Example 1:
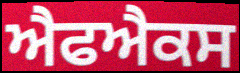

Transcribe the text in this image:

ਐਫਐਕਸ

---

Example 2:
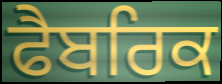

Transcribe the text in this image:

ਫੈਬਰਿਕ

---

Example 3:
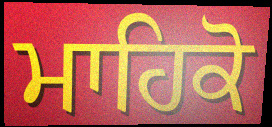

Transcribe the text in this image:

ਮਾਹਿਕੋ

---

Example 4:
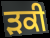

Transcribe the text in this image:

ੜਕੀ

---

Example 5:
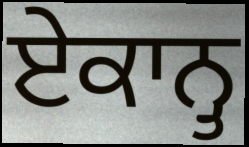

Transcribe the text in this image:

ਏਕਾਨ੍ਤ